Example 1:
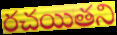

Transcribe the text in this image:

రచయితని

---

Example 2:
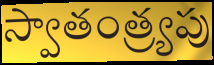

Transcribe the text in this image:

స్వాతంత్ర్యపు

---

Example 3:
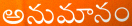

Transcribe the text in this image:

అనుమానం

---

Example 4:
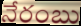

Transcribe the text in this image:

నేరంబు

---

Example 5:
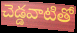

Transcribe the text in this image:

చెడ్డవాటితో